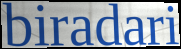
biradari